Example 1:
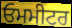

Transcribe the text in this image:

ਓਮਮੀਟਰ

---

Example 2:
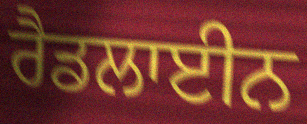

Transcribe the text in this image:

ਰੈਡਲਾਈਨ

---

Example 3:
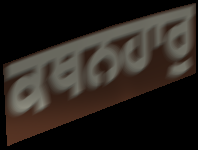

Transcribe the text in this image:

ਕਥਨਹਾਰੁ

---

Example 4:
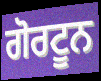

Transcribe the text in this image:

ਗੋਰਟੂਨ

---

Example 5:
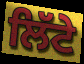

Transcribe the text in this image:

ਲਿੱਟੇ